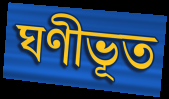
ঘণীভূত